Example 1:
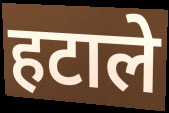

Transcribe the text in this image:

हटाले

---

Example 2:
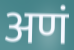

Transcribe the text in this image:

अणं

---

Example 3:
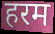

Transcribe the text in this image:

हरम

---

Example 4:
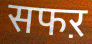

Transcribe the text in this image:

सफऱ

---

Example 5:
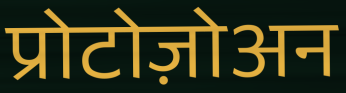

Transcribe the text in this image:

प्रोटोज़ोअन